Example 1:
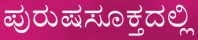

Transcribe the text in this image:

ಪುರುಷಸೂಕ್ತದಲ್ಲಿ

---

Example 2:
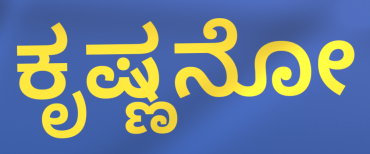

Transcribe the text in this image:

ಕೃಷ್ಣನೋ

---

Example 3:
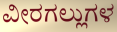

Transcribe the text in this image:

ವೀರಗಲ್ಲುಗಳ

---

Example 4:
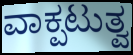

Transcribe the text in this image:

ವಾಕ್ಪಟುತ್ವ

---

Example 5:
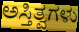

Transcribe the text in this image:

ಅಸ್ತಿತ್ವಗಳು